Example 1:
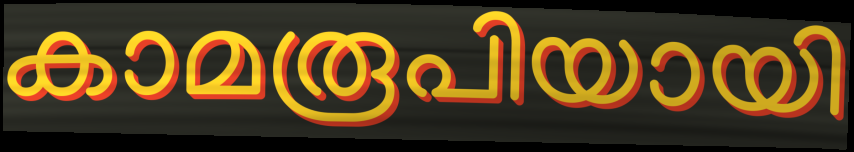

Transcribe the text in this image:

കാമരൂപിയായി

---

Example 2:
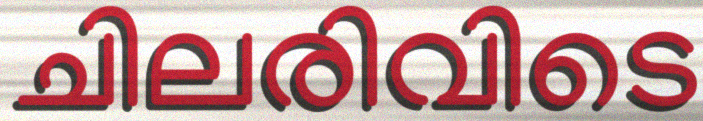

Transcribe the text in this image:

ചിലരിവിടെ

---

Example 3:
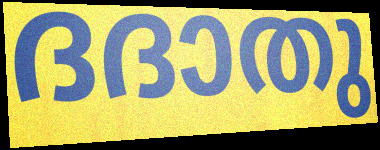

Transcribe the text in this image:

ദദാതു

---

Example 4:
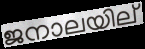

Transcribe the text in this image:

ജനാലയില്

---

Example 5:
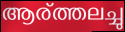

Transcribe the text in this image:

ആര്ത്തലച്ചു